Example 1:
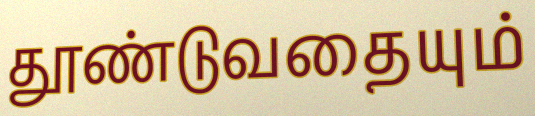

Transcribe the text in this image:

தூண்டுவதையும்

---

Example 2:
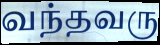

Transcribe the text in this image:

வந்தவரு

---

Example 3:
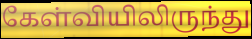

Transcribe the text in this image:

கேள்வியிலிருந்து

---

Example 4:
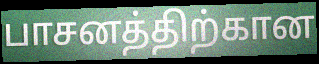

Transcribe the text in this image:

பாசனத்திற்கான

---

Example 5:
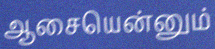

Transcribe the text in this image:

ஆசையென்னும்